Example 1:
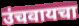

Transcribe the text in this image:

उंचवायचा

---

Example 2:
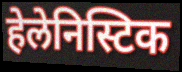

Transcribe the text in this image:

हेलेनिस्टिक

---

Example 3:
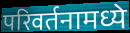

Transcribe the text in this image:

परिवर्तनामध्ये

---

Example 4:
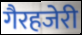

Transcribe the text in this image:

गैरहजेरी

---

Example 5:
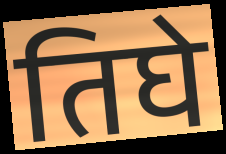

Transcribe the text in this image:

तिघे